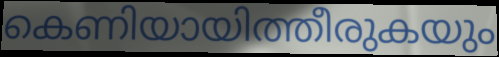
കെണിയായിത്തീരുകയും